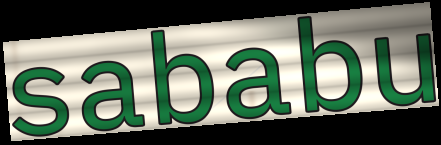
sababu